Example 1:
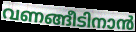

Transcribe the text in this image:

വണങ്ങീടിനാൻ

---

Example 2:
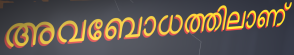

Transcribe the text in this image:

അവബോധത്തിലാണ്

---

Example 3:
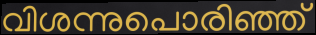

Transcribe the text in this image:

വിശന്നുപൊരിഞ്ഞ്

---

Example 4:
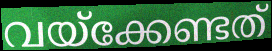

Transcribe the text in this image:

വയ്ക്കേണ്ടത്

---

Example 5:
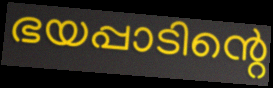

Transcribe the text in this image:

ഭയപ്പാടിന്റെ